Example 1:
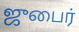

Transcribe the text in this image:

ஜுபைர்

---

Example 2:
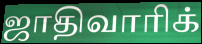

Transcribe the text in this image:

ஜாதிவாரிக்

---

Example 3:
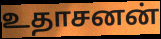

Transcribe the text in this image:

உதாசனன்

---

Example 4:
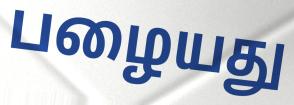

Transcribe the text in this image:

பழையது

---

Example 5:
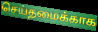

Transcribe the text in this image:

செய்தமைக்காக